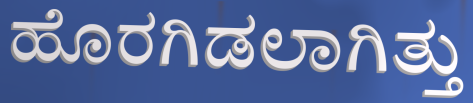
ಹೊರಗಿಡಲಾಗಿತ್ತು